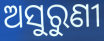
ଅସୁରୁଣୀ